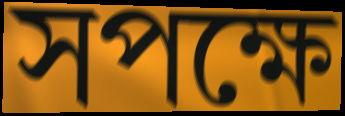
সপক্ষে